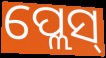
ପ୍ଲେସ୍